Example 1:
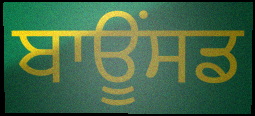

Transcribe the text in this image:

ਬਾਊਂਸਡ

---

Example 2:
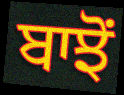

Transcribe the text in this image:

ਬਾਝੋਂ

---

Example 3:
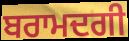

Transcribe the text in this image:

ਬਰਾਮਦਗੀ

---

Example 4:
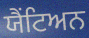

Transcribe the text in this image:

ਯੈਂਟਿਅਨ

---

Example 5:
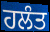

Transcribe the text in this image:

ਹਲੰਤ